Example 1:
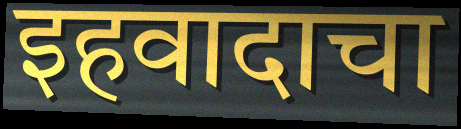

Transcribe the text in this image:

इहवादाचा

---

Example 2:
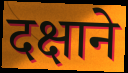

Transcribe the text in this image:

दक्षाने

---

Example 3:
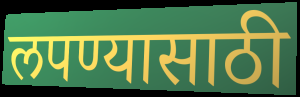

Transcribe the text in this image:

लपण्यासाठी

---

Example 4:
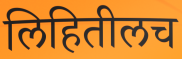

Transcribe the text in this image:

लिहितीलच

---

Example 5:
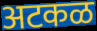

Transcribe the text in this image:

अटकळ